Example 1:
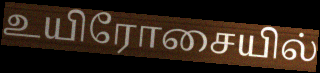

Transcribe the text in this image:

உயிரோசையில்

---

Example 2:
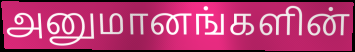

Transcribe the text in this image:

அனுமானங்களின்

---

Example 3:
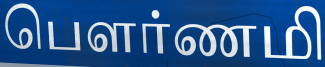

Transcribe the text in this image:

பௌர்ணமி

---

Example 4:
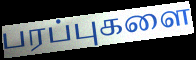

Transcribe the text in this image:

பரப்புகளை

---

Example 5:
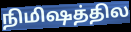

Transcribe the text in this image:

நிமிஷத்தில